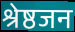
श्रेष्ठजन